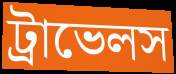
ট্রাভেলস